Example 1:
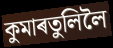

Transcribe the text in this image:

কুমাৰতুলিলৈ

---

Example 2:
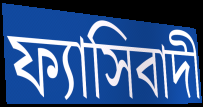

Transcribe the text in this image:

ফ্যাসিবাদী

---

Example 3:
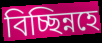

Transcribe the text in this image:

বিচ্ছিন্নহে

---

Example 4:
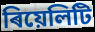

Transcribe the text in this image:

ৰিয়েলিটি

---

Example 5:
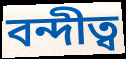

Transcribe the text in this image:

বন্দীত্ব